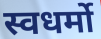
स्वधर्मो